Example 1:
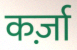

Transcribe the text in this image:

कर्ज़ा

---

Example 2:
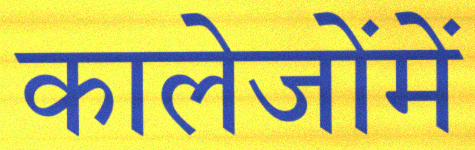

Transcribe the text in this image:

कालेजोंमें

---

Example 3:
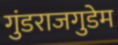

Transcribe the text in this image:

गुंडराजगुडेम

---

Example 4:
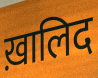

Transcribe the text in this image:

ख़ालिद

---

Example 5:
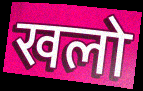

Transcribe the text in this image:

खलो